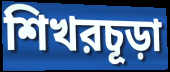
শিখরচূড়া